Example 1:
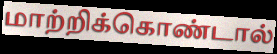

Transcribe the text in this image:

மாற்றிக்கொண்டால்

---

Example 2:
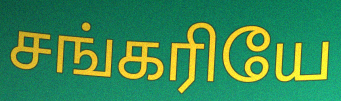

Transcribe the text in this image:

சங்கரியே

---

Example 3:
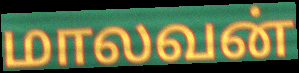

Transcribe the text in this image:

மாலவன்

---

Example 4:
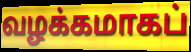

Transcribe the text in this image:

வழக்கமாகப்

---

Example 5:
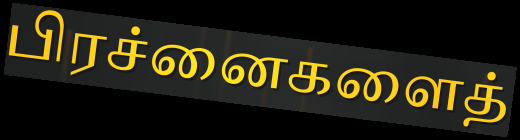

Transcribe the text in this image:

பிரச்னைகளைத்